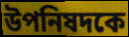
উপনিষদকে